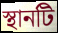
স্থানটি